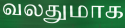
வலதுமாக